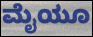
ಮೈಯೂ